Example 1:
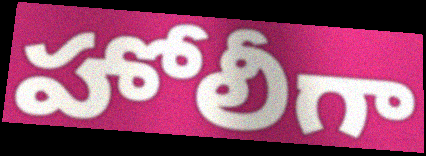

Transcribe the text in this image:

హోలీగా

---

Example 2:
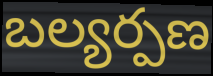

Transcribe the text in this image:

బల్యర్పణ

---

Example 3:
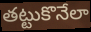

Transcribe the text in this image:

తట్టుకొనేలా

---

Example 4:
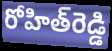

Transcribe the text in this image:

రోహిత్‌రెడ్డి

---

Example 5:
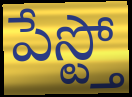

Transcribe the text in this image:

పేస్ట్తో